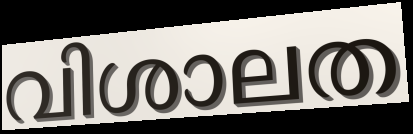
വിശാലത